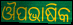
ଔପଭାଷିକ